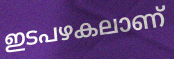
ഇടപഴകലാണ്